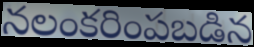
నలంకరింపబడిన